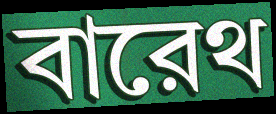
বারেথ